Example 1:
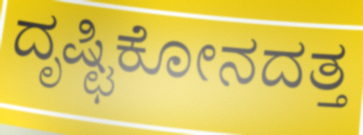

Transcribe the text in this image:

ದೃಷ್ಟಿಕೋನದತ್ತ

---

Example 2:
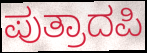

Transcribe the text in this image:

ಪುತ್ರಾದಪಿ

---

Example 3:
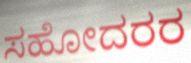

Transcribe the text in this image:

ಸಹೋದರರ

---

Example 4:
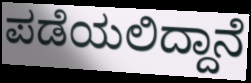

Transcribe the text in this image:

ಪಡೆಯಲಿದ್ದಾನೆ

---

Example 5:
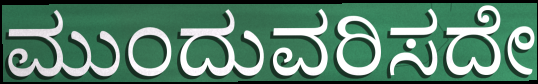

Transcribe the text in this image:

ಮುಂದುವರಿಸದೇ